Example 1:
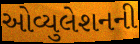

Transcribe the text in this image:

ઓવ્યુલેશનની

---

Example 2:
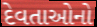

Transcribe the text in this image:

દેવતાઓનો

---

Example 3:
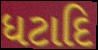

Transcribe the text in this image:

ધટાદિ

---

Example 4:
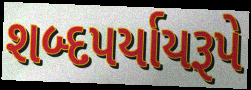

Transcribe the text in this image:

શબ્દપર્યાયરૂપે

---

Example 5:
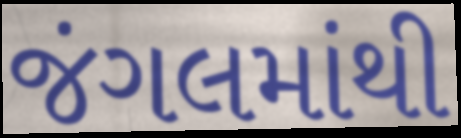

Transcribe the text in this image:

જંગલમાંથી